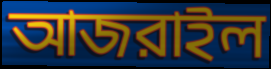
আজরাইল